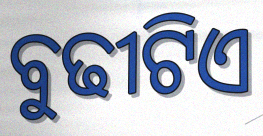
ବୁଢୀଟିଏ